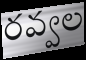
రవ్వల